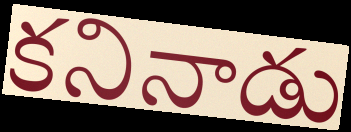
కనినాడు